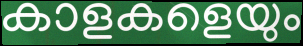
കാളകളെയും